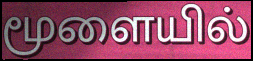
மூளையில்